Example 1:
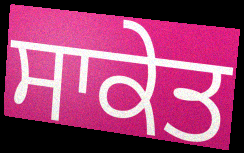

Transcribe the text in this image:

ਸਾਕੇਤ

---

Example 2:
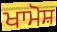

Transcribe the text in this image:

ਖਾਮੋਸ਼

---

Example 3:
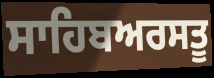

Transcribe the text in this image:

ਸਾਹਿਬਅਰਸਤੂ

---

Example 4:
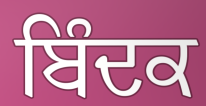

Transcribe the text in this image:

ਬਿੰਦਕ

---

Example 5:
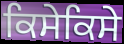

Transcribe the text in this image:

ਕਿਸੇਕਿਸੇ